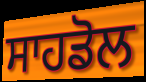
ਸਾਹਡੋਲ